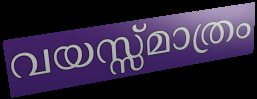
വയസ്സ്മാത്രം